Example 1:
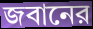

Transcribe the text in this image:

জবানের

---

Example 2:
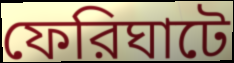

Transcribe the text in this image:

ফেরিঘাটে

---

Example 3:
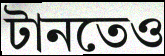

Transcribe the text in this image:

টানতেও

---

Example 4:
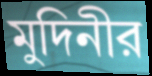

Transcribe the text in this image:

মুদিনীর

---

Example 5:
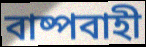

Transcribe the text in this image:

বাষ্পবাহী